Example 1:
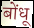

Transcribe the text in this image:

बोंधू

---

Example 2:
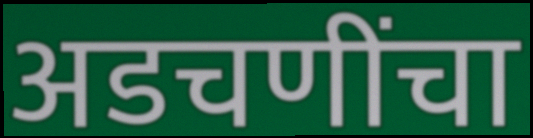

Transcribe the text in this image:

अडचणींचा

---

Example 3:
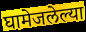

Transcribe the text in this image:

घामेजलेल्या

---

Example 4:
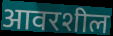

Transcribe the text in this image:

आवरशील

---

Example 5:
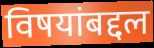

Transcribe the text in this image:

विषयांबद्दल